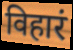
विहारं